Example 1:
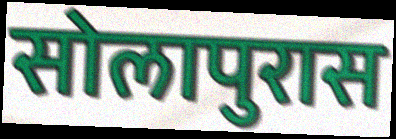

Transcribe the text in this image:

सोलापुरास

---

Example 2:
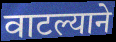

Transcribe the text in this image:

वाटल्याने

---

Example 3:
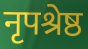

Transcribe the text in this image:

नृपश्रेष्ठ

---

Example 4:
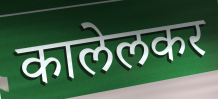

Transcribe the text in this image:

कालेलकर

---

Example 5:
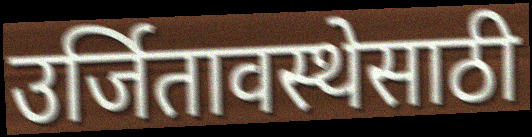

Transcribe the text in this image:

उर्जितावस्थेसाठी